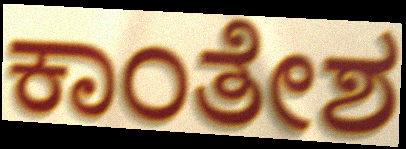
ಕಾಂತೇಶ